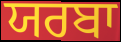
ਯਰਬਾ